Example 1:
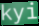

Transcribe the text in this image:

kyi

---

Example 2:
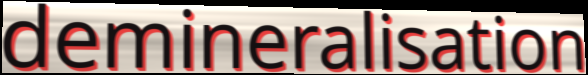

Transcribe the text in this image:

demineralisation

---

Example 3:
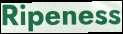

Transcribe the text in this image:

Ripeness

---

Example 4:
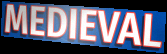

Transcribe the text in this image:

MEDIEVAL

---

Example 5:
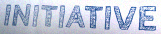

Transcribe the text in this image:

INITIATIVE